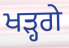
ਖੜ੍ਹਗੇ